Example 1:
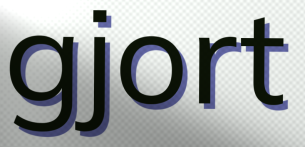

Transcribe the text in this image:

gjort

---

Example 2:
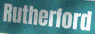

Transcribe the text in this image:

Rutherford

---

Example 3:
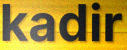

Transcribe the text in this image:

kadir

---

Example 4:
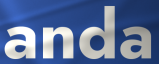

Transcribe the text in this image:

anda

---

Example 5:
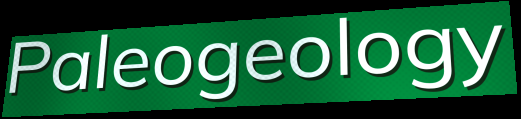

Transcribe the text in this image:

Paleogeology